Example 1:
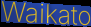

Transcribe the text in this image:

Waikato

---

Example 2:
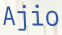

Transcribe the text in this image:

Ajio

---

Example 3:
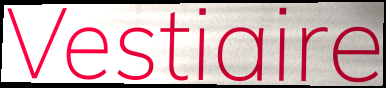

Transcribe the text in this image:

Vestiaire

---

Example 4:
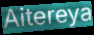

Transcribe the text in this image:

Aitereya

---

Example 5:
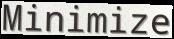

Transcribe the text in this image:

Minimize